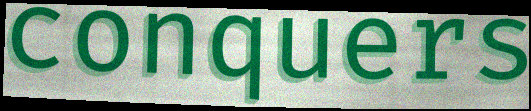
conquers